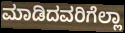
ಮಾಡಿದವರಿಗೆಲ್ಲಾ